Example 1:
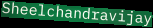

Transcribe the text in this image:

Sheelchandravijay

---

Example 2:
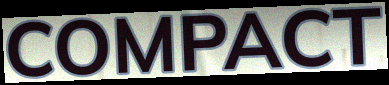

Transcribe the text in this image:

COMPACT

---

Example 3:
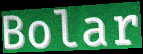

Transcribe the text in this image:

Bolar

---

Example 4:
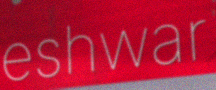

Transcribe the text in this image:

eshwar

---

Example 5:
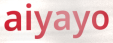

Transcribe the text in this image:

aiyayo